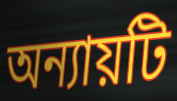
অন্যায়টি